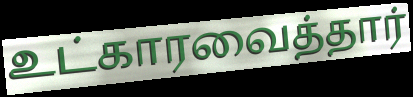
உட்காரவைத்தார்